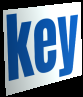
key